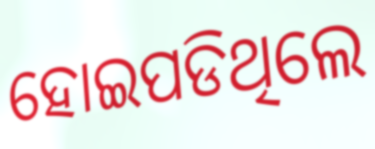
ହୋଇପଡିଥିଲେ